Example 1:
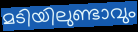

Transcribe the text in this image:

മടിയിലുണ്ടാവും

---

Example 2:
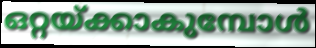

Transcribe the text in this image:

ഒറ്റയ്ക്കാകുമ്പോൾ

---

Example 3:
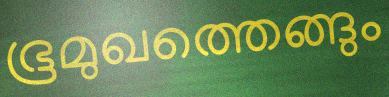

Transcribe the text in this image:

ഭൂമുഖത്തെങ്ങും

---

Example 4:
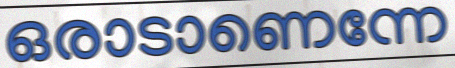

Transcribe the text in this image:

ഒരാടാണെന്നേ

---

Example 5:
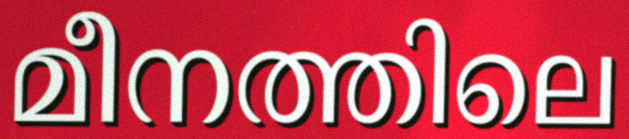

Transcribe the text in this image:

മീനത്തിലെ